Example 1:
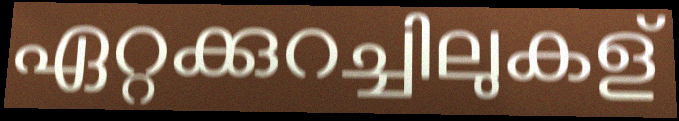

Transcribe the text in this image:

ഏറ്റക്കുറച്ചിലുകള്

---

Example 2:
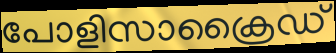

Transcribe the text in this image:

പോളിസാക്രൈഡ്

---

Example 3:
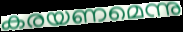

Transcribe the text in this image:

കരയണമെന്നു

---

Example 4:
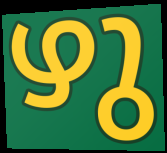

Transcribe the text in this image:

ഴു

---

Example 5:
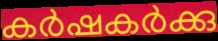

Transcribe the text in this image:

കർഷകർക്കു